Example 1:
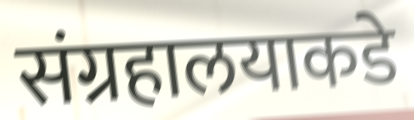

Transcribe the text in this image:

संग्रहालयाकडे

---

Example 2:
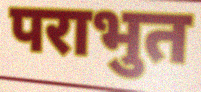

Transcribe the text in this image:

पराभुत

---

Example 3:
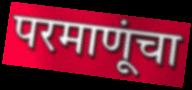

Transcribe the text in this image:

परमाणूंचा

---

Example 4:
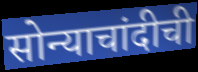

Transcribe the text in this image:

सोन्याचांदीची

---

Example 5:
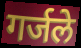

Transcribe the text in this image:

गर्जले